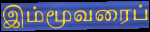
இம்மூவரைப்